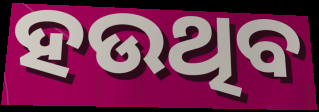
ହଉଥିବ